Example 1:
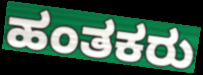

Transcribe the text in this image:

ಹಂತಕರು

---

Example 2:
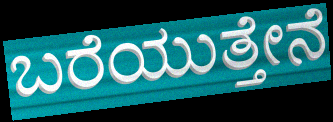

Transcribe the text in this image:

ಬರೆಯುತ್ತೇನೆ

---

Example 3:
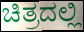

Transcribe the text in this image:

ಚಿತ್ರದಲ್ಲಿ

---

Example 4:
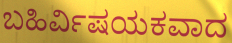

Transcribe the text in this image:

ಬಹಿರ್ವಿಷಯಕವಾದ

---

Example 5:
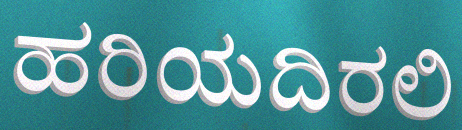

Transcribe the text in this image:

ಹರಿಯದಿರಲಿ